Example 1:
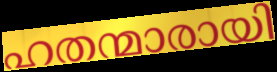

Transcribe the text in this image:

ഹതന്മാരായി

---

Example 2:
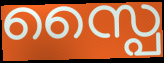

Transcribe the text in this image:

സ്പൈ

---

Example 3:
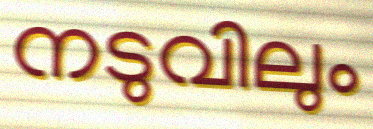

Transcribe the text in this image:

നടുവിലും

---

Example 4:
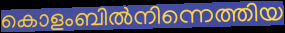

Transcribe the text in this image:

കൊളംബിൽനിന്നെത്തിയ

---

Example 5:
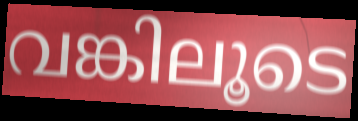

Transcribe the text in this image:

വങ്കിലൂടെ